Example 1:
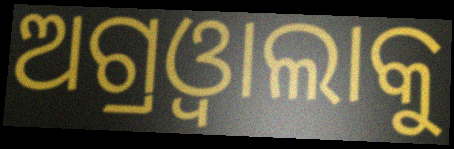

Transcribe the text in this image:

ଅଗ୍ରଓ୍ୱାଲାକୁ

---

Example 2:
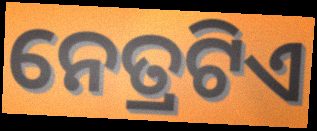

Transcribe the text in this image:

ନେତ୍ରଟିଏ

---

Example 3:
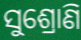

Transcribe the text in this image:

ସୁଶ୍ରୋଣି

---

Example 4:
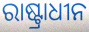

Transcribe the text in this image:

ରାଷ୍ଟ୍ରାଧୀନ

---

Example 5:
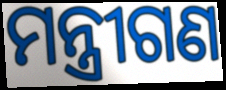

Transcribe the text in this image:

ମନ୍ତ୍ରୀଗଣ